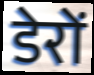
डेरों